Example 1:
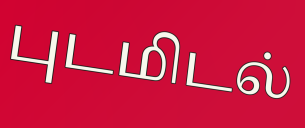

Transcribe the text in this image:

புடமிடல்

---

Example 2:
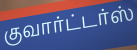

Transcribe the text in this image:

குவார்ட்டர்ஸ்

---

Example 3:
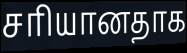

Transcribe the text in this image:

சரியானதாக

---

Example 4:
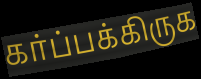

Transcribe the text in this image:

கர்ப்பக்கிருக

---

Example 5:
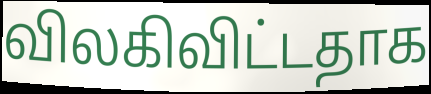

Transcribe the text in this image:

விலகிவிட்டதாக